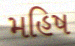
મહિષ